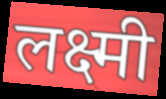
लक्ष्‍मी